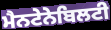
ਮੈਨਟੇਨੇਬਿਲਟੀ